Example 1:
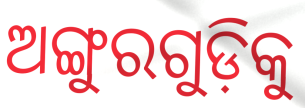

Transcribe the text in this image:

ଅଙ୍ଗୁରଗୁଡ଼ିକୁ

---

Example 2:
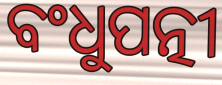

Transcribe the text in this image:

ବଂଧୁପତ୍ନୀ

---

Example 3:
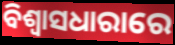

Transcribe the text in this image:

ବିଶ୍ଵାସଧାରାରେ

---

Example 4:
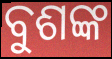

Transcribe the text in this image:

ବୁଶଙ୍କ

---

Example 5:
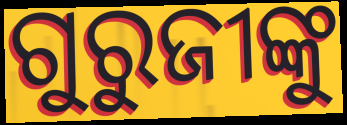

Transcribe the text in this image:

ଗୁରୁଜୀଙ୍କୁ